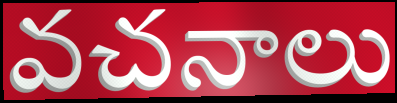
వచనాలు